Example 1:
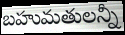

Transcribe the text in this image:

బహుమతులన్నీ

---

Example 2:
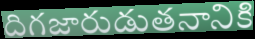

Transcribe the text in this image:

దిగజారుడుతనానికి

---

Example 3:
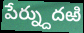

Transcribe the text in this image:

పేర్న్దుదఱి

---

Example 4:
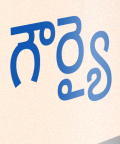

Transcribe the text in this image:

గౌర్యై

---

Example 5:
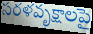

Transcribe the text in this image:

సరళవృక్షాలపై